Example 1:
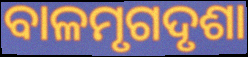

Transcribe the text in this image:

ବାଳମୃଗଦୃଶା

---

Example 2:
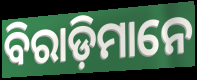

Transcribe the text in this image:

ବିରାଡ଼ିମାନେ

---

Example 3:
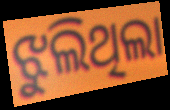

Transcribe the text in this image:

ଝୁଲିଥିଲା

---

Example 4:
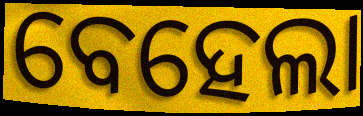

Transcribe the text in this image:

ବେହେଲା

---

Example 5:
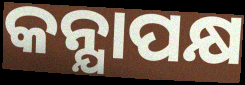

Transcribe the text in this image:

କନ୍ଯାପକ୍ଷ